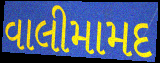
વાલીમામદ